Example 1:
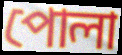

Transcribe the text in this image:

পোলা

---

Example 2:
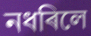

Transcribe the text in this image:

নধৰিলে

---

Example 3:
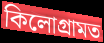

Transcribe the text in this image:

কিলোগ্ৰামত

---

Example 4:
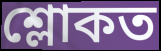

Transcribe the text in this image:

শ্লোকত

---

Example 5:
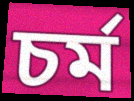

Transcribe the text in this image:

চৰ্ম